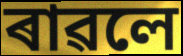
ৰাৱলে